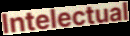
Intelectual